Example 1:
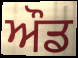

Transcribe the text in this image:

ਔਡ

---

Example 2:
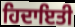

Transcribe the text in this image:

ਹਿਦਾਇਤੀ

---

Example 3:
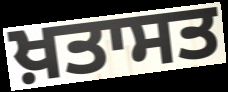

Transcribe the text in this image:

ਖ਼ਤਾਸਤ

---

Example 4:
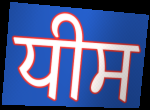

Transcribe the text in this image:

ਧੀਸ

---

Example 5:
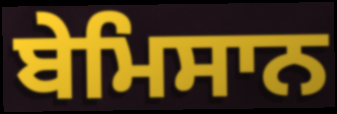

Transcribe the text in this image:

ਬੇਮਿਸਾਨ